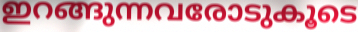
ഇറങ്ങുന്നവരോടുകൂടെ